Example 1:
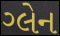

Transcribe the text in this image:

ગ્લેન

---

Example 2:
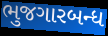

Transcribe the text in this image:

ભુજગારબન્ધ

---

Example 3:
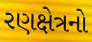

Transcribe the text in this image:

રણક્ષેત્રનો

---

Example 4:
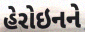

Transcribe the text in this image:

હેરોઇનને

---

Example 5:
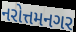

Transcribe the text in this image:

નરોત્તમનગર